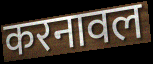
करनावल